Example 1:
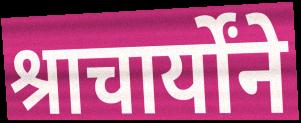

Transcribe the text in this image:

श्राचार्योंने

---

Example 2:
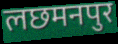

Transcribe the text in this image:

लछमनपुर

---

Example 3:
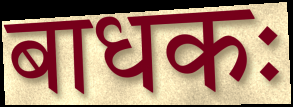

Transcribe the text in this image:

बाधकः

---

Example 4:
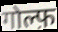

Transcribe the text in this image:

गोल्फ़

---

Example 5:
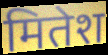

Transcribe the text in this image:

मितेश